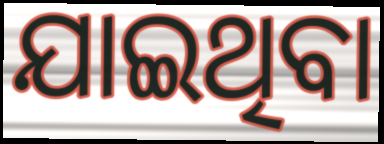
ଯାଇଥିବା